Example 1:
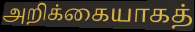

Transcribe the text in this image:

அறிக்கையாகத்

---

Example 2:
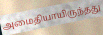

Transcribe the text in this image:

அமைதியாயிருந்தது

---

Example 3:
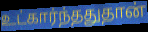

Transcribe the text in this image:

உட்கார்ந்ததுதான்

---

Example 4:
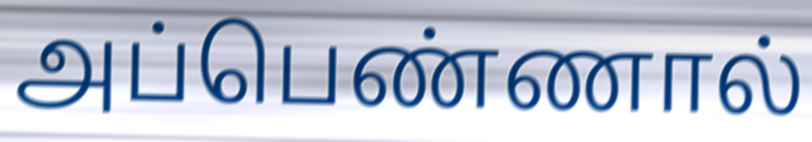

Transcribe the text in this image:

அப்பெண்ணால்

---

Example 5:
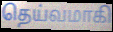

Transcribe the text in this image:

தெய்வமாகி